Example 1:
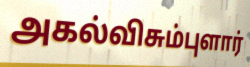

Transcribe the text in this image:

அகல்விசும்புளார்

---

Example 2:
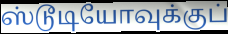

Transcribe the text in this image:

ஸ்டூடியோவுக்குப்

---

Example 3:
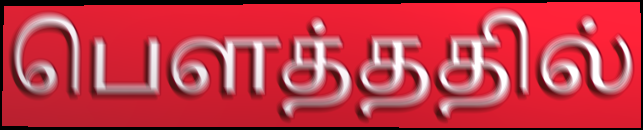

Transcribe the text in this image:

பௌத்ததில்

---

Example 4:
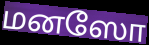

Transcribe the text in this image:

மனஸோ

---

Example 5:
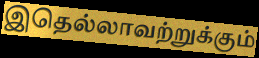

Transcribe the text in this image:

இதெல்லாவற்றுக்கும்